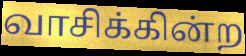
வாசிக்கின்ற